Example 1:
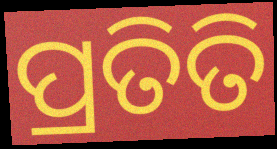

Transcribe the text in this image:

ପ୍ରତିତି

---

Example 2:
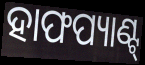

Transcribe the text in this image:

ହାଫପ୍ୟାଣ୍ଟ୍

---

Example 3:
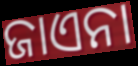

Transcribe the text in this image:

ଜାଏନା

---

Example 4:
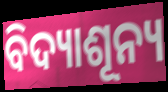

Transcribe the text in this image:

ବିଦ୍ୟାଶୂନ୍ୟ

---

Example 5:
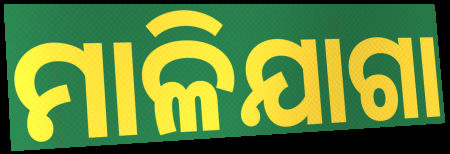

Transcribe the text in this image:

ମାଳିଯାଗା